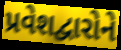
પ્રવેશદ્વારોને